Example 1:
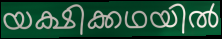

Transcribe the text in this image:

യക്ഷിക്കഥയിൽ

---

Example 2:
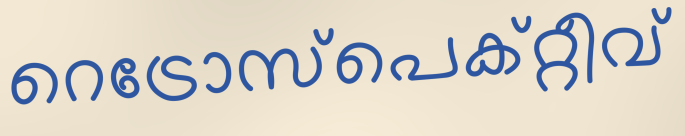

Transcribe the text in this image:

റെട്രോസ്പെക്റ്റീവ്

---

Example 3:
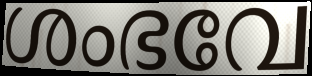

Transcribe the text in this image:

ശംഭവേ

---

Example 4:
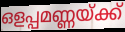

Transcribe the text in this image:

ഒളപ്പമണ്ണയ്ക്ക്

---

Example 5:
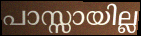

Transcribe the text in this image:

പാസ്സായില്ല